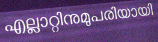
എല്ലാറ്റിനുമുപരിയായി